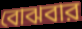
বোঝবার